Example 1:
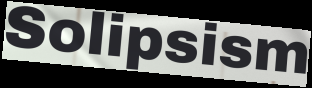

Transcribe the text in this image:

Solipsism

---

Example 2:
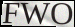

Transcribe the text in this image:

FWO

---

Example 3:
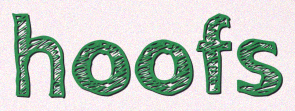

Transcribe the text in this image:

hoofs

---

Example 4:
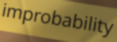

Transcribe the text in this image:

improbability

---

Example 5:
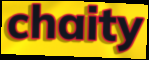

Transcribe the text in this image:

chaity